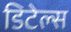
डिटेल्स